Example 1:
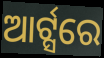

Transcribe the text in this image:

ଆର୍ଟ୍ସରେ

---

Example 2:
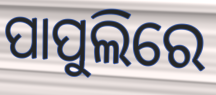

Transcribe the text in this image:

ପାପୁଲିରେ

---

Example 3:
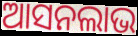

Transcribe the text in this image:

ଆସନଲାଭ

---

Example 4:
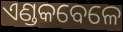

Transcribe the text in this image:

ଏଣ୍ଡକବେଳେ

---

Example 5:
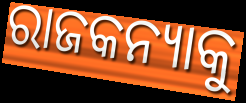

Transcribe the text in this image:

ରାଜକନ୍ୟାକୁ